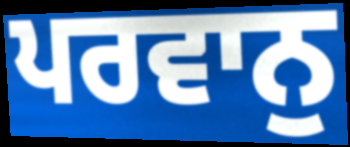
ਪਰਵਾਨੁ